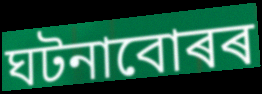
ঘটনাবোৰৰ